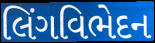
લિંગવિભેદન